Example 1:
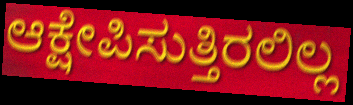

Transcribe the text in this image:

ಆಕ್ಷೇಪಿಸುತ್ತಿರಲಿಲ್ಲ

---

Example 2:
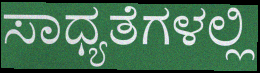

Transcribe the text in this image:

ಸಾಧ್ಯತೆಗಳಲ್ಲಿ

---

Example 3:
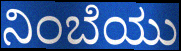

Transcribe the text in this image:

ನಿಂಬೆಯು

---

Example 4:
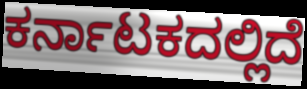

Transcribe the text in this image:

ಕರ್ನಾಟಕದಲ್ಲಿದೆ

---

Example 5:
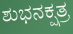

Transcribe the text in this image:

ಶುಭನಕ್ಷತ್ರ